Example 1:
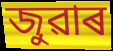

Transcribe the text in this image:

জুৱাৰ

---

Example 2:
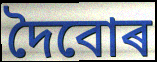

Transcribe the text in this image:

দৈবোৰ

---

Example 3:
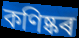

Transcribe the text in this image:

কণিষ্কৰ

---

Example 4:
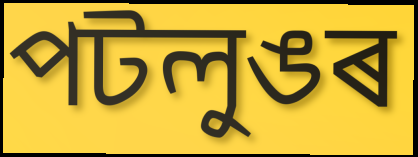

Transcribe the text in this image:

পটলুঙৰ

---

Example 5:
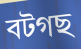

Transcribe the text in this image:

বটগছ